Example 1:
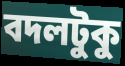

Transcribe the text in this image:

বদলটুকু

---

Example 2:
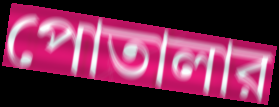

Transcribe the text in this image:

পোতালার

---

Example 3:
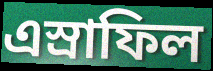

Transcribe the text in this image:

এস্রাফিল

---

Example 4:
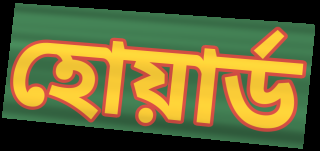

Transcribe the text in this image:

হোয়ার্ড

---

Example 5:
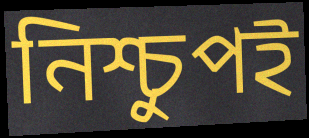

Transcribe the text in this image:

নিশ্চুপই